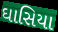
ઘાસિયા